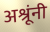
अश्रूंनी